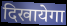
दिखायेगा